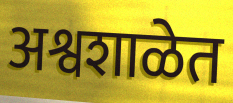
अश्वशाळेत